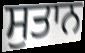
ਸੁਤਾਨ